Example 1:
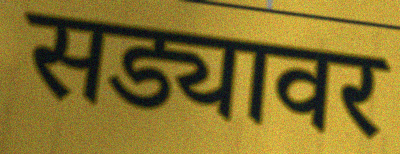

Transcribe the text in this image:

सड्यावर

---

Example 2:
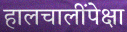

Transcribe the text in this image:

हालचालींपेक्षा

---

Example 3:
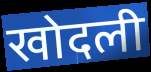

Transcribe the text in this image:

खोदली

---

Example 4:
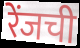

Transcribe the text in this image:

रेंजची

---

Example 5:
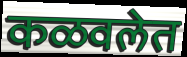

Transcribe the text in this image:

कळवलेत